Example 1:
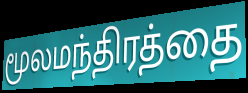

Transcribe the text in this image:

மூலமந்திரத்தை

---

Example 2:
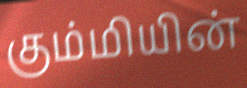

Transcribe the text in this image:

கும்மியின்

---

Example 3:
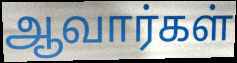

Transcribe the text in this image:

ஆவார்கள்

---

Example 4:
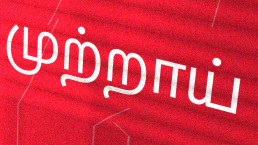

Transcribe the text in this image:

முற்றாய்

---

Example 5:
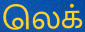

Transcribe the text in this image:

லெக்